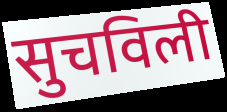
सुचविली